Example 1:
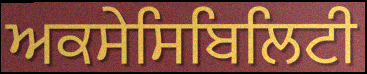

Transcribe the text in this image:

ਅਕਸੇਸਿਬਿਲਿਟੀ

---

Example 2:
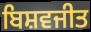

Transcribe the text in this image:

ਬਿਸ਼ਵਜੀਤ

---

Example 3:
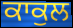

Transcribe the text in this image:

ਕਾਕੁਲ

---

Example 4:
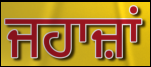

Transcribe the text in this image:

ਜਹਾਜ਼ਾਂ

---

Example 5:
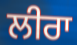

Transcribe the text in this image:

ਲੀਰਾ